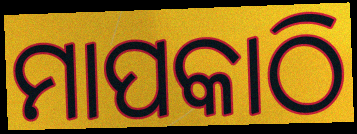
ମାପକାଠି